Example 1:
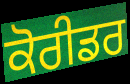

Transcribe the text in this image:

ਕੋਰੀਡਰ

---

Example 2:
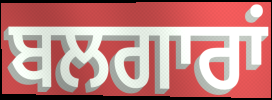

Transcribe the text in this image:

ਬਲਗਾਰਾਂ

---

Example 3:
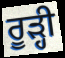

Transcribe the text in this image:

ਰੂੜ੍ਹੀ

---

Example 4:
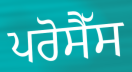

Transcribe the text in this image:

ਪਰੋਸੈੱਸ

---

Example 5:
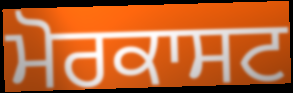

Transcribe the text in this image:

ਮੋਰਕਾਸਟ